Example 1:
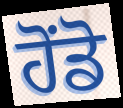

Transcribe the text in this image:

ਹੋਂਡੋ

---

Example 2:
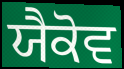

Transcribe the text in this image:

ਯੈਕੋਵ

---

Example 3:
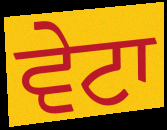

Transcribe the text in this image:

ਵੇਟਾ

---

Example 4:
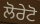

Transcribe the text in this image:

ਲੋਰੇਟੋ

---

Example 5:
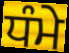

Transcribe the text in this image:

ਧੰਮੇ